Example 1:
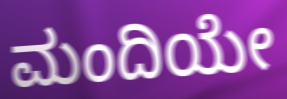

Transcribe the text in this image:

ಮಂದಿಯೇ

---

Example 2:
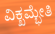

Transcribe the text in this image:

ವಿಕ್ಖಮ್ಭೇತಿ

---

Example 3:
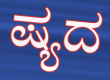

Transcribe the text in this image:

ಷ್ಯದ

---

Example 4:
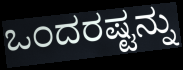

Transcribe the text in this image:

ಒಂದರಷ್ಟನ್ನು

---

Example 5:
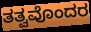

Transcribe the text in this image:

ತತ್ವವೊಂದರ